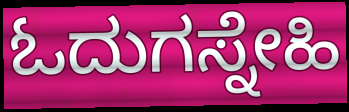
ಓದುಗಸ್ನೇಹಿ